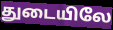
துடையிலே